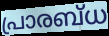
പ്രാരബ്ധ